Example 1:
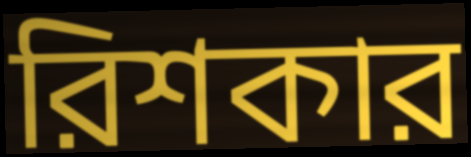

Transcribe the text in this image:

রিশকার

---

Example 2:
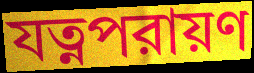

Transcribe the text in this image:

যত্নপরায়ণ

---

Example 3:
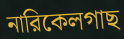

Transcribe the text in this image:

নারিকেলগাছ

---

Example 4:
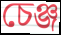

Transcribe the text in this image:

চেঞ্জ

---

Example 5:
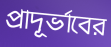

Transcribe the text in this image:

প্রাদূর্ভাবের